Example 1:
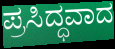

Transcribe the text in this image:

ಪ್ರಸಿದ್ಧವಾದ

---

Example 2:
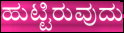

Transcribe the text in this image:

ಹುಟ್ಟಿರುವುದು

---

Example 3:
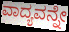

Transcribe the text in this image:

ವಾದ್ಯವನ್ನೇ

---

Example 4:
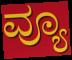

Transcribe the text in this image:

ವ್ಯೂ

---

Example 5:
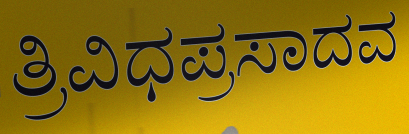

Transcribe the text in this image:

ತ್ರಿವಿಧಪ್ರಸಾದವ